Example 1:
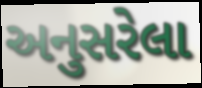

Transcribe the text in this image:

અનુસરેલા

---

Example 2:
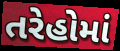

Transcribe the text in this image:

તરેહોમાં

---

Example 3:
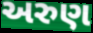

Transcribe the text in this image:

અરુણ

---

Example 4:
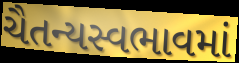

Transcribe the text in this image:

ચૈતન્યસ્વભાવમાં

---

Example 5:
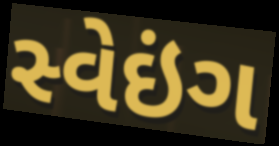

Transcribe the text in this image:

સ્વેઇંગ